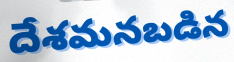
దేశమనబడిన